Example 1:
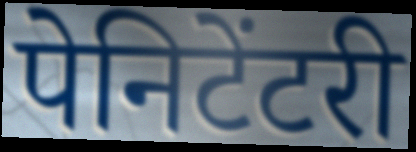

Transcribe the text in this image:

पेनिटेंटरी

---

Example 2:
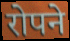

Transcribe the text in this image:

रोपने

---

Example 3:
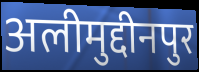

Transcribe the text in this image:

अलीमुद्दीनपुर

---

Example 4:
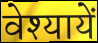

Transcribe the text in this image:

वेश्यायें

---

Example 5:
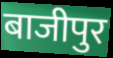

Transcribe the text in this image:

बाजीपुर